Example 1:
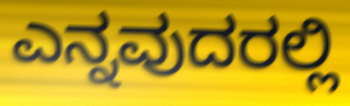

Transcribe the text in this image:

ಎನ್ನವುದರಲ್ಲಿ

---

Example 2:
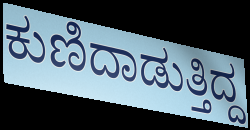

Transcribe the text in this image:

ಕುಣಿದಾಡುತ್ತಿದ್ದ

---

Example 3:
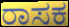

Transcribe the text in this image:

ರಾಸಕ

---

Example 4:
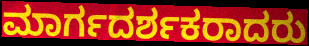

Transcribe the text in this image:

ಮಾರ್ಗದರ್ಶಕರಾದರು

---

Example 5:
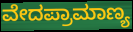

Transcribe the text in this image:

ವೇದಪ್ರಾಮಾಣ್ಯ